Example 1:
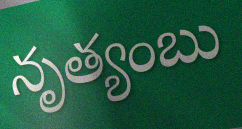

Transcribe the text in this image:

నృత్యంబు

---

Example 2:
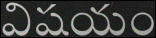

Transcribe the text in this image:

విషయం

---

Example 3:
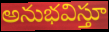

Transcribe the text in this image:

అనుభవిస్తూ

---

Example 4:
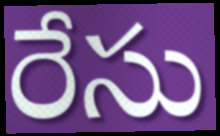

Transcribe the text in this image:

రేసు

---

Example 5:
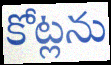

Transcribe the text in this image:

కోట్లను